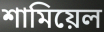
শামিয়েল